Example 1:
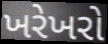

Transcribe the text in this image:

ખરેખરો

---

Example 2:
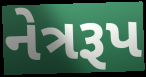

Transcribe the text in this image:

નેત્રરૂપ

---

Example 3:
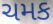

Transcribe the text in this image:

ચમક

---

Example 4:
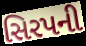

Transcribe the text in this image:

સિરપની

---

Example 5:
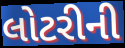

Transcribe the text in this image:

લોટરીની